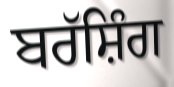
ਬਰੱਸ਼ਿੰਗ